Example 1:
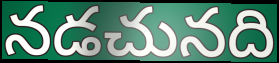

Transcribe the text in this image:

నడచునది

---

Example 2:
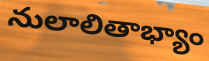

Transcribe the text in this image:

నులాలితాభ్యాం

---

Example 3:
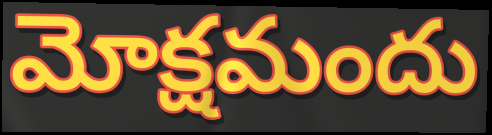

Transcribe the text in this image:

మోక్షమందు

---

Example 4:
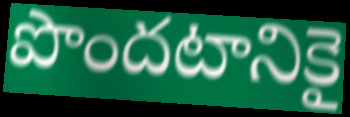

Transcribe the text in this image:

పొందటానికై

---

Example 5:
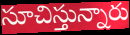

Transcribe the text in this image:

సూచిస్తున్నారు